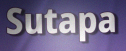
Sutapa